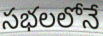
సభలలోనే